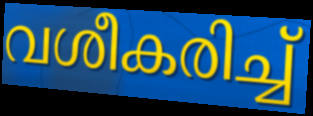
വശീകരിച്ച്